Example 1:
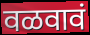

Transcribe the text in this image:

वळवावं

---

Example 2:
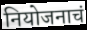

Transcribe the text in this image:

नियोजनाचं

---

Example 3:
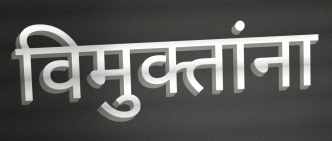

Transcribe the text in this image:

विमुक्तांना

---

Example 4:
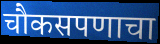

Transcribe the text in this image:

चौकसपणाचा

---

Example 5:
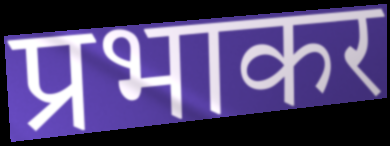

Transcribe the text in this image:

प्रभाकर